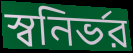
স্বনির্ভর